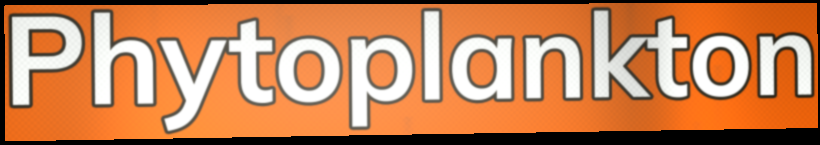
Phytoplankton